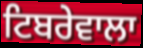
ਟਿਬਰੇਵਾਲਾ